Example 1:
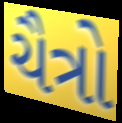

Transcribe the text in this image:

ચૈત્રો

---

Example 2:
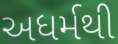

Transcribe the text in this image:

અધર્મથી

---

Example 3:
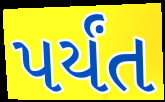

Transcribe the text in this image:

પર્યંત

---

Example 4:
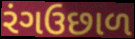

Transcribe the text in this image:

રંગઉછાળ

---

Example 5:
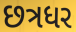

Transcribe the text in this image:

છત્રધર